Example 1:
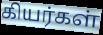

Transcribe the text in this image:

கியர்கள்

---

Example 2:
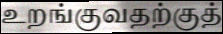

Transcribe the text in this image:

உறங்குவதற்குத்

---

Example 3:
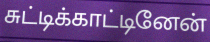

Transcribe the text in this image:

சுட்டிக்காட்டினேன்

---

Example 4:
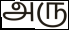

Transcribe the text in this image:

அரு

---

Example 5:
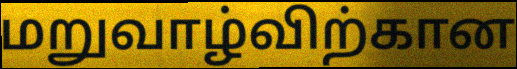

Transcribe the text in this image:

மறுவாழ்விற்கான